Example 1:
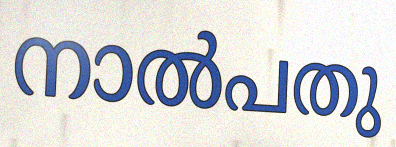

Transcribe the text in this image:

നാൽപതു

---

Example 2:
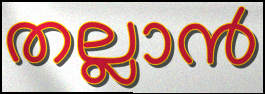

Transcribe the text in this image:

തല്ലാൻ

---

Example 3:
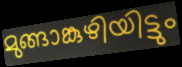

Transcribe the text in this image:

മുങ്ങാങ്കുഴിയിട്ടും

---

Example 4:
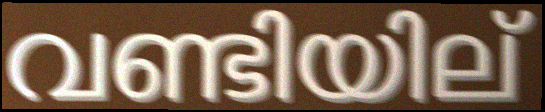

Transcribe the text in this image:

വണ്ടിയില്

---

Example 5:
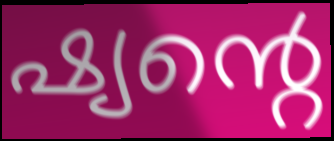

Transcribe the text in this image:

ഷ്യന്റെ